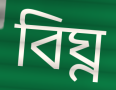
বিঘ্ন